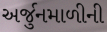
અર્જુનમાળીની